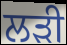
ਲਡ਼ੀ